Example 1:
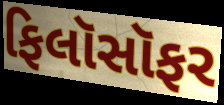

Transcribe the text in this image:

ફિલૉસૉફર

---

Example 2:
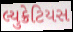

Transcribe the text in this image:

લ્યુક્રેટિયસ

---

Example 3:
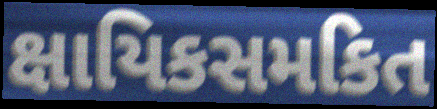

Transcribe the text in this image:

ક્ષાયિકસમકિત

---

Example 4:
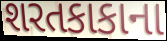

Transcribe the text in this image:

શરતકાકાના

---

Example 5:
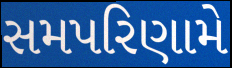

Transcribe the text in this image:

સમપરિણામે